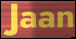
Jaan